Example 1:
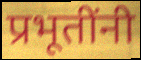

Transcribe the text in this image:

प्रभूतींनी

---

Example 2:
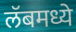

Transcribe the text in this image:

लॅबमध्ये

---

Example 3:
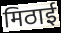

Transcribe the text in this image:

मिठाई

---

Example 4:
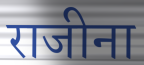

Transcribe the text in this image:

राजीना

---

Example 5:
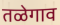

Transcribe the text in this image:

तळेगाव